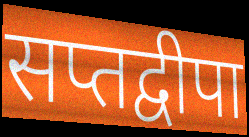
सप्तद्वीपा